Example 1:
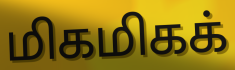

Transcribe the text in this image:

மிகமிகக்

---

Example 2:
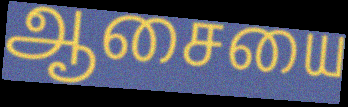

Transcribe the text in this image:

ஆசையை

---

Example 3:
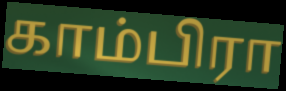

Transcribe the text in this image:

காம்பிரா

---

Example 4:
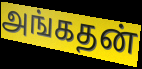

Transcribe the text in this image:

அங்கதன்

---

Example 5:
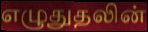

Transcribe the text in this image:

எழுதுதலின்